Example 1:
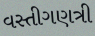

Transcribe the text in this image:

વસ્તીગણત્રી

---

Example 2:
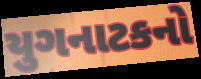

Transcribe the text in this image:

યુગનાટકનો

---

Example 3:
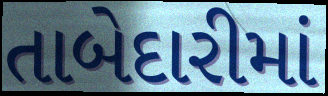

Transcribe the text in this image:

તાબેદારીમાં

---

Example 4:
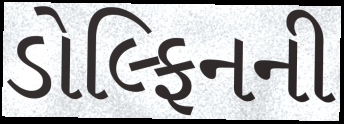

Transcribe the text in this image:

ડોલ્ફિનની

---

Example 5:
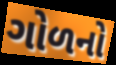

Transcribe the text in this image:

ગોળનો